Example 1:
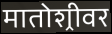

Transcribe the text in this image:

मातोश्रीवर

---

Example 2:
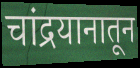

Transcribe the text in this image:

चांद्रयानातून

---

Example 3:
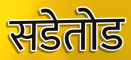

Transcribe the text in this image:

सडेतोड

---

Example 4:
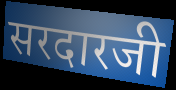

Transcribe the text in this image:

सरदारजी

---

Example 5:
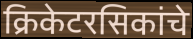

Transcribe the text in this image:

क्रिकेटरसिकांचे